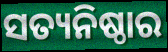
ସତ୍ୟନିଷ୍ଠାର